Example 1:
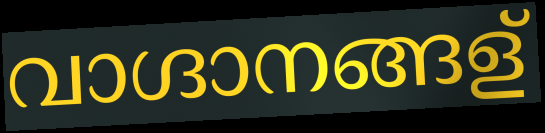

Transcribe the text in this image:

വാഗ്ദാനങ്ങള്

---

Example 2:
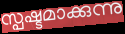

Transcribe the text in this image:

സ്പഷ്ടമാക്കുന്നു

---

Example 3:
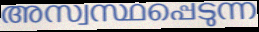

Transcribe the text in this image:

അസ്വസ്ഥപ്പെടുന്ന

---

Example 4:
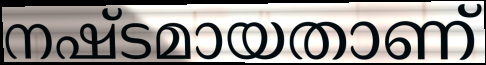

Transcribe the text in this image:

നഷ്ടമായതാണ്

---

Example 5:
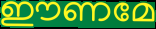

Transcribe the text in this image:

ഈണമേ